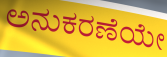
ಅನುಕರಣೆಯೇ